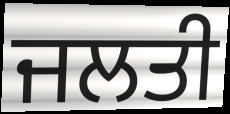
ਜਲਤੀ